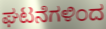
ಘಟನೆಗಳಿಂದ